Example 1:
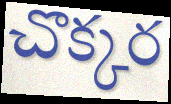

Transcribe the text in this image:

చొక్కర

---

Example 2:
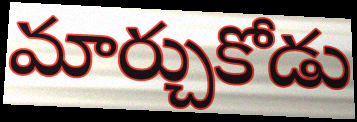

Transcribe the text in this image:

మార్చుకోడు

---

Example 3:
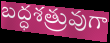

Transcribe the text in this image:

బద్ధశత్రువుగా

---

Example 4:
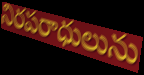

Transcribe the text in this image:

నిరపరాధులును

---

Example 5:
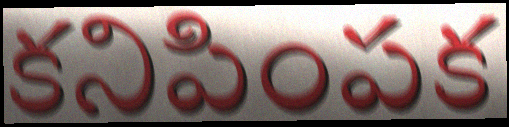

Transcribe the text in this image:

కనిపింపక